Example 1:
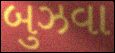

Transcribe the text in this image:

બુઝવા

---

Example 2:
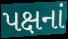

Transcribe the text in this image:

પક્ષનાં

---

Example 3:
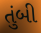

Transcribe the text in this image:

તુંબી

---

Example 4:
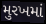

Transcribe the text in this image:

મુરખમાં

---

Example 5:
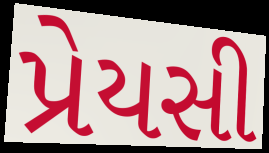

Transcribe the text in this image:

પ્રેયસી